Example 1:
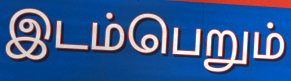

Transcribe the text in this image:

இடம்பெறும்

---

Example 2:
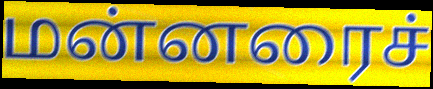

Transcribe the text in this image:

மன்னரைச்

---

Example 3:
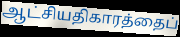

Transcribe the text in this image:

ஆட்சியதிகாரத்தைப்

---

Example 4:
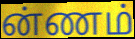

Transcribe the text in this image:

ன்ணம்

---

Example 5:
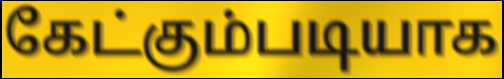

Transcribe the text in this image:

கேட்கும்படியாக